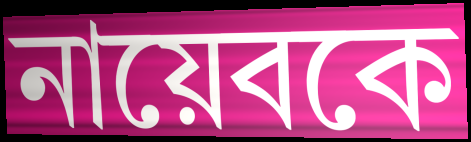
নায়েবকে